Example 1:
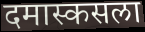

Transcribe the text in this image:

दमास्कसला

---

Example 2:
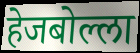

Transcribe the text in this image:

हेजबोल्ला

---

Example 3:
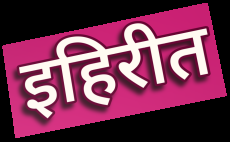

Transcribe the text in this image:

इहिरीत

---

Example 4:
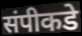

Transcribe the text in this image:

संपीकडे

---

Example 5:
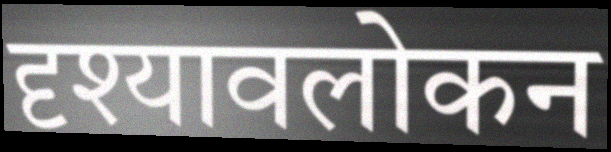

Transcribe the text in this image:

दृश्‍यावलोकन